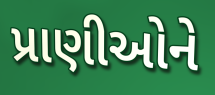
પ્રાણીઓને